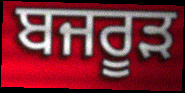
ਬਜਰੂੜ